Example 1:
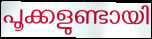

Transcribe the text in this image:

പൂക്കളുണ്ടായി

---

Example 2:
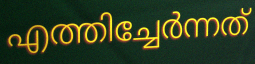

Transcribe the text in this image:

എത്തിച്ചേർന്നത്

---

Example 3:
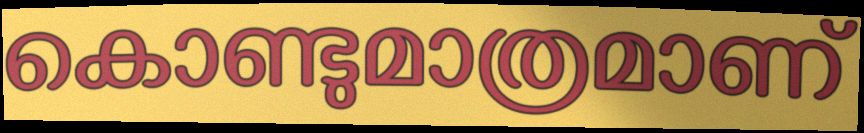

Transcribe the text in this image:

കൊണ്ടുമാത്രമാണ്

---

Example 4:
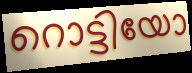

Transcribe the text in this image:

റൊട്ടിയോ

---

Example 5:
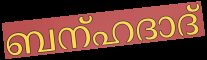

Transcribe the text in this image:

ബന്ഹദാദ്